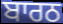
ਬਾਰਠ